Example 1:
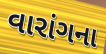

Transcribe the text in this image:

વારાંગના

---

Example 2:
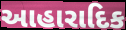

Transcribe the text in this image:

આહારાદિક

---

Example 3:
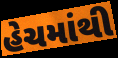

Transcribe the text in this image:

હેચમાંથી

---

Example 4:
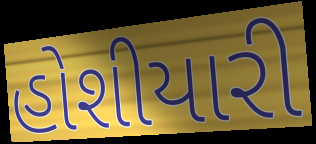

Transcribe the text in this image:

હોશીયારી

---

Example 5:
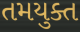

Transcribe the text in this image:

તમયુક્ત